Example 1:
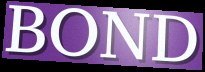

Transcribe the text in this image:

BOND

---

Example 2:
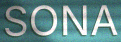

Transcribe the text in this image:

SONA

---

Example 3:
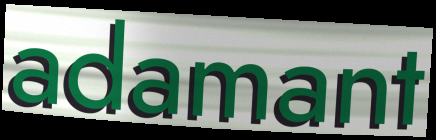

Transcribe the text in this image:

adamant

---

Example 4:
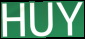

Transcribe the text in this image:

HUY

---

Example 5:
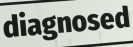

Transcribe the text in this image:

diagnosed